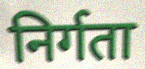
निर्गता